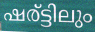
ഷര്ട്ടിലും